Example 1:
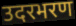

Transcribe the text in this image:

उदरभरण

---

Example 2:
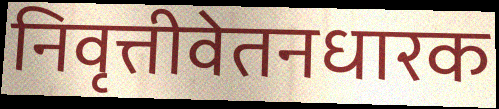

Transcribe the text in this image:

निवृत्तीवेतनधारक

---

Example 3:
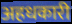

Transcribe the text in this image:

अहधकारी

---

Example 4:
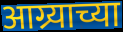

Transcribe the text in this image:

आग्र्याच्या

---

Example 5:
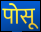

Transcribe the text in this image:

पोसू